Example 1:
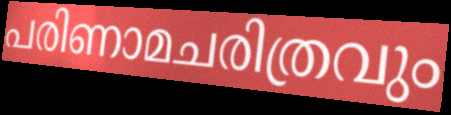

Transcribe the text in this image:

പരിണാമചരിത്രവും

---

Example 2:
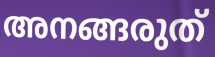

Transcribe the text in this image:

അനങ്ങരുത്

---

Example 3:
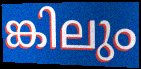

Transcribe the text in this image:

ങ്കിലും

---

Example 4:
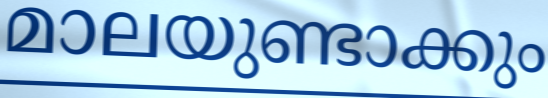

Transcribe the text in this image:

മാലയുണ്ടാക്കും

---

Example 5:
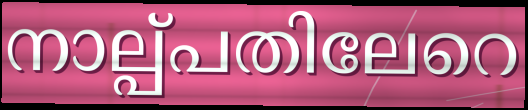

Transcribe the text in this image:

നാല്പ്പതിലേറെ